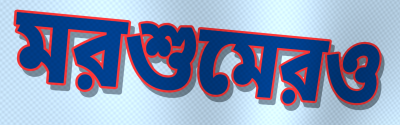
মরশুমেরও